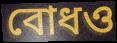
বোধও